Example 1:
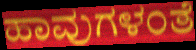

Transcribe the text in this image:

ಹಾವುಗಳಂತೆ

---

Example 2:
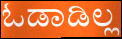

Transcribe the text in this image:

ಓಡಾಡಿಲ್ಲ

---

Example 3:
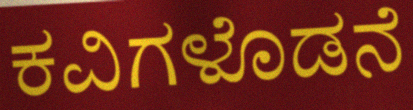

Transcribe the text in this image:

ಕವಿಗಳೊಡನೆ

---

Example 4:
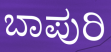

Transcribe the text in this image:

ಬಾಪುರಿ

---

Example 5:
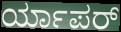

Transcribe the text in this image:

ರ್ಯಾಪರ್